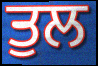
ਤੁਲ